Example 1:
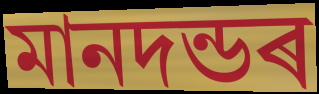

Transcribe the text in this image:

মানদন্ডৰ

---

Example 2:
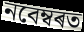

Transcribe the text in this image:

নবেম্বৰত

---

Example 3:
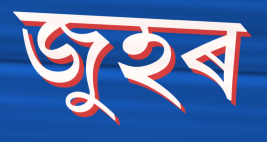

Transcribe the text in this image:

জুহৰ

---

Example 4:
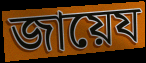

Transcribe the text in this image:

জায়েয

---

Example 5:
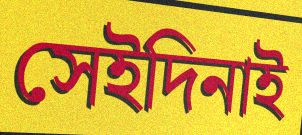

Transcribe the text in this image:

সেইদিনাই